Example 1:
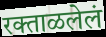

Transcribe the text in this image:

रक्ताळलेलं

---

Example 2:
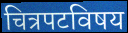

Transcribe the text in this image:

चित्रपटविषय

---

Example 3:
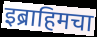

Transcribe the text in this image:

इब्राहिमचा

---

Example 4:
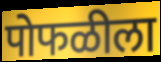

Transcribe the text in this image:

पोफळीला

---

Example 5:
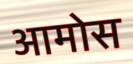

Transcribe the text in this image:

आमोस